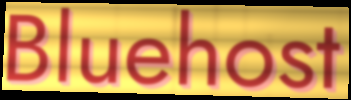
Bluehost